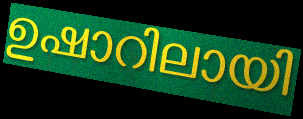
ഉഷാറിലായി